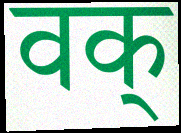
वक्